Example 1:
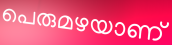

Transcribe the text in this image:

പെരുമഴയാണ്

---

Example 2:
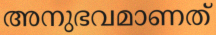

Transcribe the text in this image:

അനുഭവമാണത്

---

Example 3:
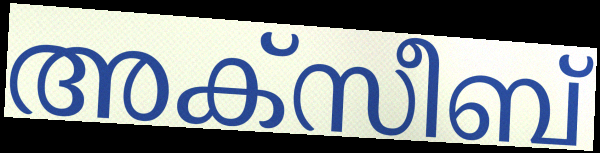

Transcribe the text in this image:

അക്സീബ്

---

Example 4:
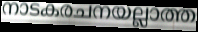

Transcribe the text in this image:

നാടകരചനയല്ലാത്ത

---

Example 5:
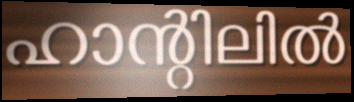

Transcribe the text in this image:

ഹാന്റിലിൽ